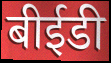
बीईडी